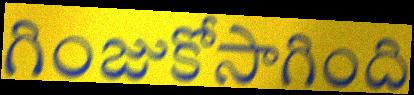
గింజుకోసాగింది